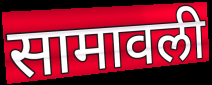
सामावली